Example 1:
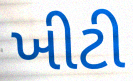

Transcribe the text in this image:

ખીટી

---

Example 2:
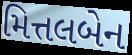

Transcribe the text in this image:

મિત્તલબેન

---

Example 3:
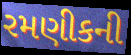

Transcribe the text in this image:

રમણીકની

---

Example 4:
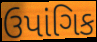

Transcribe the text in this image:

ઉપાંગિક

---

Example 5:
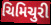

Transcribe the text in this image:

ચિમિચુરી